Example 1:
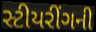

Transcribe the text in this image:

સ્ટીયરીંગની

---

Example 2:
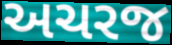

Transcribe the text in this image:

અચરજ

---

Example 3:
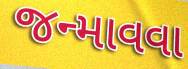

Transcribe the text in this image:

જન્માવવા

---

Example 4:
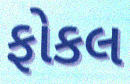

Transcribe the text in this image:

ફોકલ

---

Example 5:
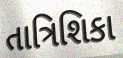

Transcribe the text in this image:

તાત્રિશિકા